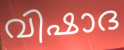
വിഷാദ